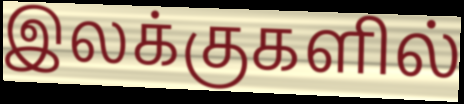
இலக்குகளில்